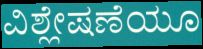
ವಿಶ್ಲೇಷಣೆಯೂ